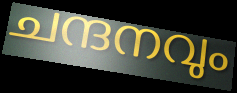
ചന്ദനവും